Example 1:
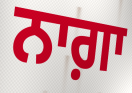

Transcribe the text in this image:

ਨਾਗ਼ਾ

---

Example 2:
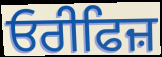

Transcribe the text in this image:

ਓਰੀਫਿਜ਼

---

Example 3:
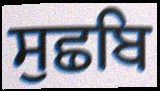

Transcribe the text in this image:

ਸੁਛਬਿ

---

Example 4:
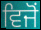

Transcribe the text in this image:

ਵਿਜੋਂ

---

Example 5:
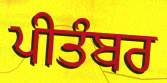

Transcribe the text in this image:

ਪੀਤੰਬਰ